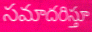
సమాదరిస్తూ